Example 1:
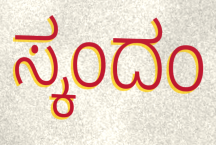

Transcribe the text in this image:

ಸ್ಕಂದಂ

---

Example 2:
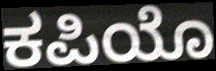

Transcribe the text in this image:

ಕಪಿಯೊ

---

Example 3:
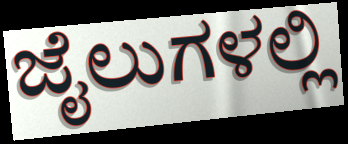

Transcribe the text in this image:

ಜೈಲುಗಳಲ್ಲಿ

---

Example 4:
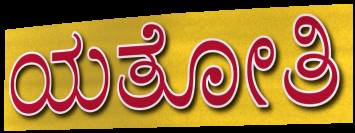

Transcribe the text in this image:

ಯತೋತಿ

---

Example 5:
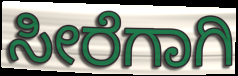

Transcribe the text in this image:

ಸೀರೆಗಾಗಿ